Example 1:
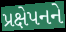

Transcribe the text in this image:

પ્રક્ષેપનને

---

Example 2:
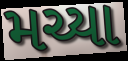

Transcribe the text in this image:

મચ્યા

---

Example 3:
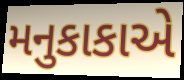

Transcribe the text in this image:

મનુકાકાએ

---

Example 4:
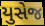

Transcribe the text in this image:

યુસેજ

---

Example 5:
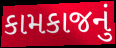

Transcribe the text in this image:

કામકાજનું